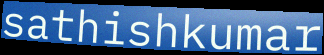
sathishkumar